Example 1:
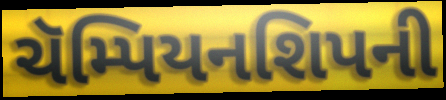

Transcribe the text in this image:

ચૅમ્પિયનશિપની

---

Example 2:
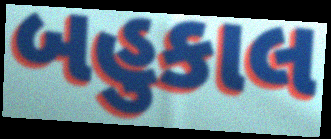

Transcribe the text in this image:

બહુકાલ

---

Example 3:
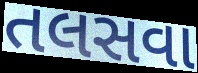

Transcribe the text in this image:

તલસવા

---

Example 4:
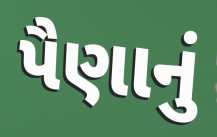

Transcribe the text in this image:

પૈણાનું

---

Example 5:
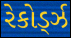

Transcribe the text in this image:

રેકોર્ડ્ઝ